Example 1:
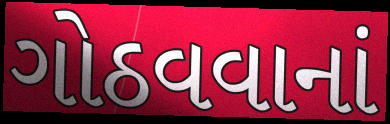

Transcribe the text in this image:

ગોઠવવાનાં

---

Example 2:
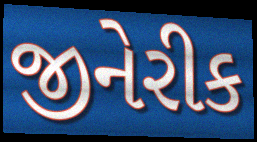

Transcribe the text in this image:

જીનેરીક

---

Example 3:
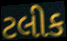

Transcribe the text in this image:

ટલીક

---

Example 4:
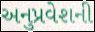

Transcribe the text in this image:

અનુપ્રવેશની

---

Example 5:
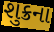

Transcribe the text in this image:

શુક્રના